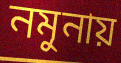
নমুনায়